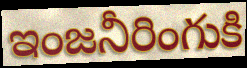
ఇంజనీరింగుకి